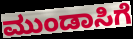
ಮುಂಡಾಸಿಗೆ